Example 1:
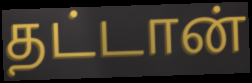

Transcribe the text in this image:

தட்டான்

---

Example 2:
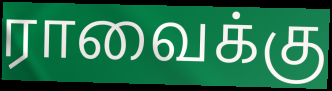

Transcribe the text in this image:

ராவைக்கு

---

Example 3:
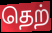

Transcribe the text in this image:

தெற்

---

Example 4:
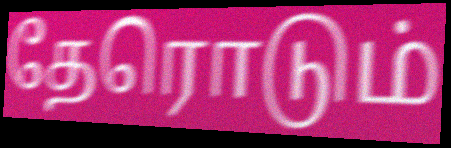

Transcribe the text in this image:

தேரொடும்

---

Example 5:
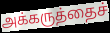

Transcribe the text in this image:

அக்கருத்தைச்